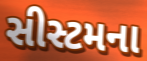
સીસ્ટમના